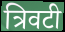
त्रिवटी